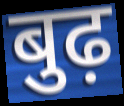
बुढ़